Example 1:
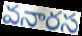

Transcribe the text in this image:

వనారస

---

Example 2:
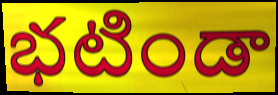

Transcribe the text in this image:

భటిండా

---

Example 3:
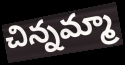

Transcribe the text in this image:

చిన్నమ్మా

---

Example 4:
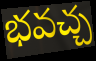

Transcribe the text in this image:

భవచ్చ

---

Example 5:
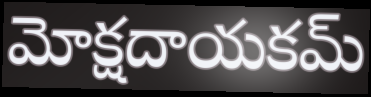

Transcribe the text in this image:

మోక్షదాయకమ్